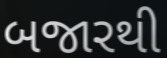
બજારથી